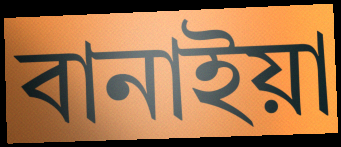
বানাইয়া